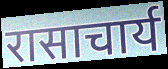
रासाचार्य